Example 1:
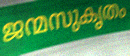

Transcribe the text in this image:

ജന്മസുകൃതം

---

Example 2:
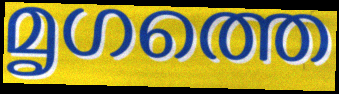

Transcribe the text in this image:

മൃഗത്തെ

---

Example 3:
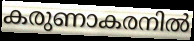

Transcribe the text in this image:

കരുണാകരനിൽ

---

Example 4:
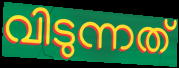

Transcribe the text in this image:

വിടുന്നത്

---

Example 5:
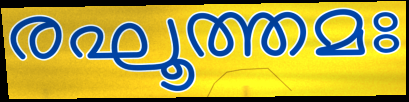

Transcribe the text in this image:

രഘൂത്തമഃ